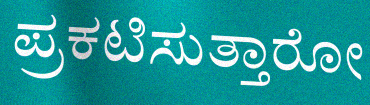
ಪ್ರಕಟಿಸುತ್ತಾರೋ